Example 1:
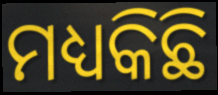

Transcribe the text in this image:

ମଧ୍ୟକିଛି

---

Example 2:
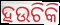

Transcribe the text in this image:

ହଉଚିକି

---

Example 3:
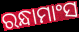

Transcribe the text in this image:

ରନ୍ଧାମାଂସ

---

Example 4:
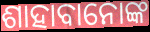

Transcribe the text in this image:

ଶାହାବାନୋଙ୍କ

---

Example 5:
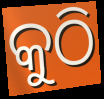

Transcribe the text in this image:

କୁଠି